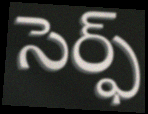
సెర్ఫ్